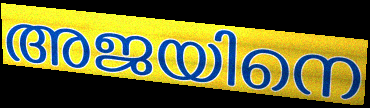
അജയിനെ